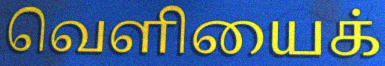
வெளியைக்